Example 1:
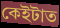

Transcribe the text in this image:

কেইটাত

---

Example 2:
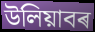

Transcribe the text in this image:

উলিয়াবৰ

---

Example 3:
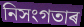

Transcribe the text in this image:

নিসংগতাৰ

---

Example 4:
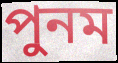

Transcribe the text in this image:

পুনম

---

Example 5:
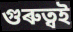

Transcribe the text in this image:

গুৰুত্বই